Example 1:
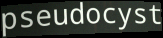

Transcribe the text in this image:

pseudocyst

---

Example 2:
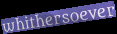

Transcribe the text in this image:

whithersoever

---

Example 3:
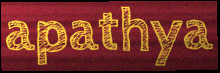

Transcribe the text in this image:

apathya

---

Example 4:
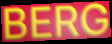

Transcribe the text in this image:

BERG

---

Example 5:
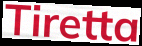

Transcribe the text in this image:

Tiretta